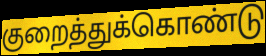
குறைத்துக்கொண்டு